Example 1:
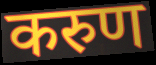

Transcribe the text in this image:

करुण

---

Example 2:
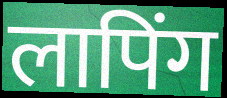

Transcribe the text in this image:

लापिंग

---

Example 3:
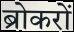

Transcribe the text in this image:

ब्रोकरों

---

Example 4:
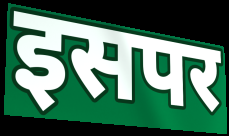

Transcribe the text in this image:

इसपर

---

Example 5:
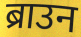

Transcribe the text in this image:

ब्राउन